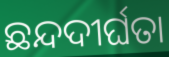
ଛନ୍ଦଦୀର୍ଘତା